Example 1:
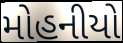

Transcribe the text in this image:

મોહનીયો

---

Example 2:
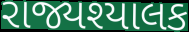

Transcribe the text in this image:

રાજ્યશ્યાલક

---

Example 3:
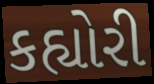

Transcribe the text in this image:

કહ્યોરી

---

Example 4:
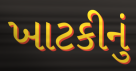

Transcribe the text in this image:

ખાટકીનું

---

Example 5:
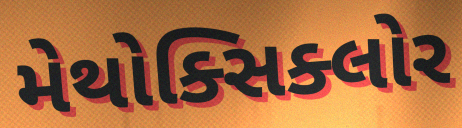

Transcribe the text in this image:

મેથોક્સિક્લોર